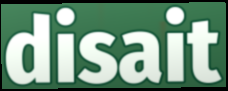
disait